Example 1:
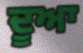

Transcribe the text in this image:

ਦੂਆ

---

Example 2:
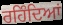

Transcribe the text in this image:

ਰਹਿੰਦਿਆਂ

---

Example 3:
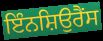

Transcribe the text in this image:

ਇੰਨਸ਼ਿਉਰੈਂਸ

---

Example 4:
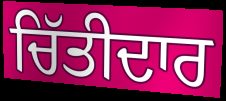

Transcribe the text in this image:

ਚਿੱਤੀਦਾਰ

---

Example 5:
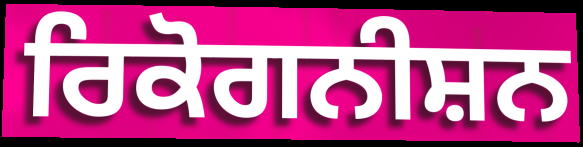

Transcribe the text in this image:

ਰਿਕੋਗਨੀਸ਼ਨ